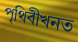
পৃথিবীখনত